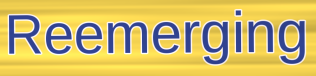
Reemerging